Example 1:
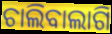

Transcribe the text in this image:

ଚାଲିବାଲାଗି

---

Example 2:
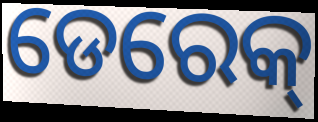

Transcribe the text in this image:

ଡେରେକ୍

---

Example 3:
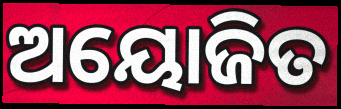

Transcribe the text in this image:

ଅୟୋଜିତ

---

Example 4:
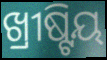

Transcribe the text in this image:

ଖ୍ରୀଷ୍ଟିୟ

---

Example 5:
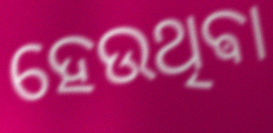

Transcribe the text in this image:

ହେଉଥିଵା